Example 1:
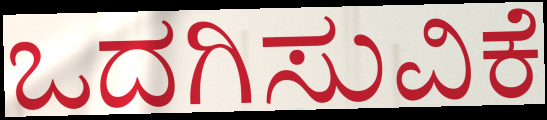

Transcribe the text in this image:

ಒದಗಿಸುವಿಕೆ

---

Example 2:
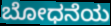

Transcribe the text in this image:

ಬೋಧನೆಯ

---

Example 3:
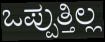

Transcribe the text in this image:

ಒಪ್ಪುತ್ತಿಲ್ಲ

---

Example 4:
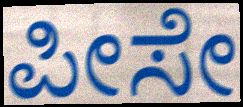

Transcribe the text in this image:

ಪೀಸೇ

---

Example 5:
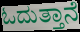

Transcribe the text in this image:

ಓದುತ್ತಾನೆ